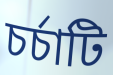
চর্চাটি